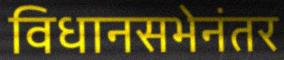
विधानसभेनंतर